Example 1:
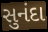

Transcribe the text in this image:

સુનંદા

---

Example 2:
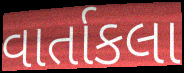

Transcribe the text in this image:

વાર્તાકલા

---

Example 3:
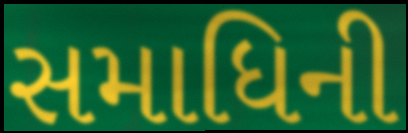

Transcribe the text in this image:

સમાધિની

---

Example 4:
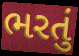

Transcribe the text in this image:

ભરતું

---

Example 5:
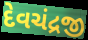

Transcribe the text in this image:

દેવચંદ્રજી